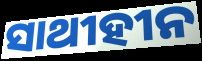
ସାଥୀହୀନ